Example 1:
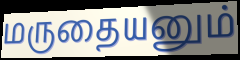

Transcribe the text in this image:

மருதையனும்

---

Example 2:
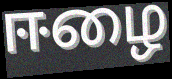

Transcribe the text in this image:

ஈழை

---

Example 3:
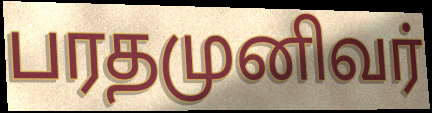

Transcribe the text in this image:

பரதமுனிவர்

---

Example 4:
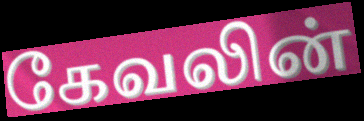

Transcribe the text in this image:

கேவலின்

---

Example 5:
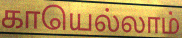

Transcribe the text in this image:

காயெல்லாம்